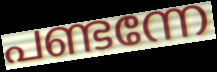
പണ്ടന്നേ